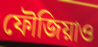
ফৌজিয়াও